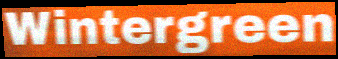
Wintergreen